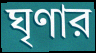
ঘৃণার